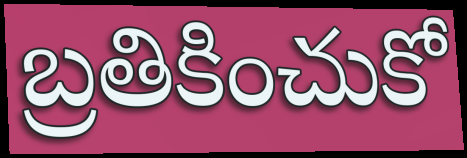
బ్రతికించుకో